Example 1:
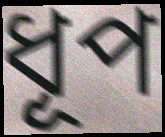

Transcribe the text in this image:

ধূপ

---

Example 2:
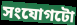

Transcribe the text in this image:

সংযোগটো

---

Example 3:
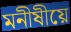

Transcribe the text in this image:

মনীষীয়ে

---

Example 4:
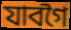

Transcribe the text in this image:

যাবগৈ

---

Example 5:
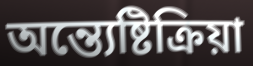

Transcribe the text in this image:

অন্ত্যেষ্টিক্ৰিয়া